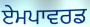
ਏਮਪਾਵਰਡ